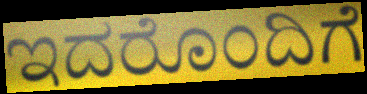
ಇದರೊಂದಿಗೆ